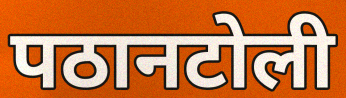
पठानटोली